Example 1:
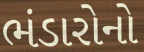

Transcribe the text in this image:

ભંડારોનો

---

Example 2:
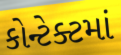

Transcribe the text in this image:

કોન્ટેક્ટમાં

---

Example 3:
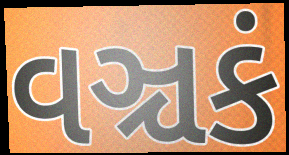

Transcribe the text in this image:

વઞ્ચકં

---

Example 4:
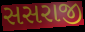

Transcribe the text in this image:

સસરાજી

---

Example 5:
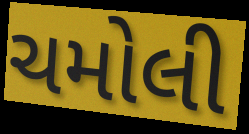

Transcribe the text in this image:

ચમોલી